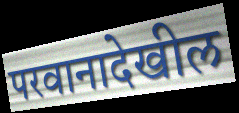
परवानादेखील